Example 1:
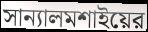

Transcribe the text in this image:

সান্যালমশাইয়ের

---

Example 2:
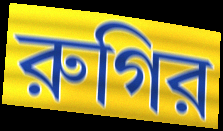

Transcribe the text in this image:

রুগির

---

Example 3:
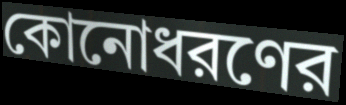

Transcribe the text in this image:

কোনোধরণের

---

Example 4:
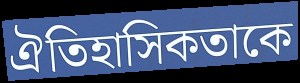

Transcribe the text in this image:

ঐতিহাসিকতাকে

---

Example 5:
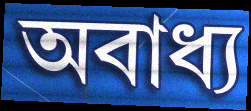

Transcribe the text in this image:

অবাধ্য